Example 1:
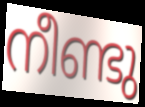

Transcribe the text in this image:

നീണ്ടു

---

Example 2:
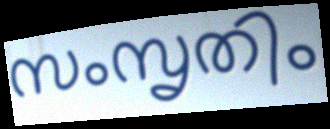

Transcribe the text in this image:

സംസൃതിം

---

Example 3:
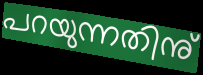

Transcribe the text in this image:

പറയുന്നതിനു്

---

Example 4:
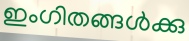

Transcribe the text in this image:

ഇംഗിതങ്ങൾക്കു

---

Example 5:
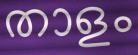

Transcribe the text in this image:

താളം